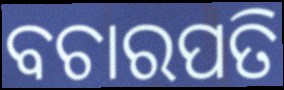
ବଚାରପତି